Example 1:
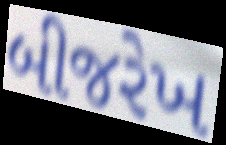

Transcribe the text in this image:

બીજરેખ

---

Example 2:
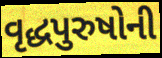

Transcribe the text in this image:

વૃદ્ધપુરુષોની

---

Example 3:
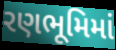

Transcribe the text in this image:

રણભૂમિમાં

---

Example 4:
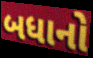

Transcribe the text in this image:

બધાનો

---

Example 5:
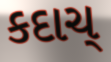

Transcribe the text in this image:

કદાચ્